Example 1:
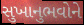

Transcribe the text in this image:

સુખાનુભવોને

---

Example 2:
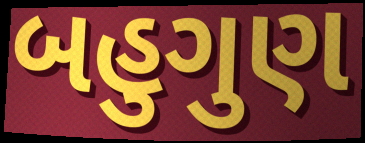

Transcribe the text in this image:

બહુગુણ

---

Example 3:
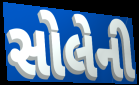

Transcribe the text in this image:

સોલેની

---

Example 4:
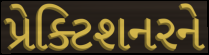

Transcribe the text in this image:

પ્રેક્ટિશનરને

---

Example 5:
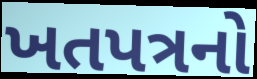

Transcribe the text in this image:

ખતપત્રનો